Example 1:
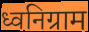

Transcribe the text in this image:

ध्वनिग्राम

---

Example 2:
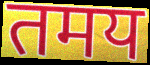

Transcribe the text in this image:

तमय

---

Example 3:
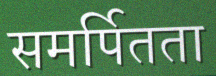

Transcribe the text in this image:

समर्पितता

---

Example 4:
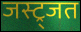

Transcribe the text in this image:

जस्ट्र्जत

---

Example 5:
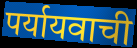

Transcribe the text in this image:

पर्यायवाची